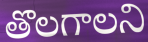
తొలగాలని